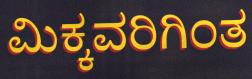
ಮಿಕ್ಕವರಿಗಿಂತ